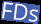
FDs